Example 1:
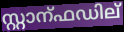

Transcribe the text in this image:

സ്റ്റാന്ഫഡില്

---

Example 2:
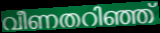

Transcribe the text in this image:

വീണതറിഞ്ഞ്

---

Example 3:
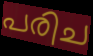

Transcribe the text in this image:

പരിച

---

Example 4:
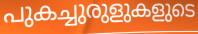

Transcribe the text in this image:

പുകച്ചുരുളുകളുടെ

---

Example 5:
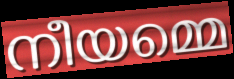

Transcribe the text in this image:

നീയമ്മെ